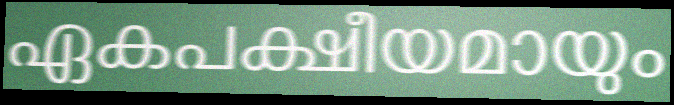
ഏകപക്ഷീയമായും